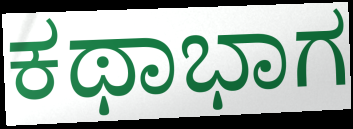
ಕಥಾಭಾಗ